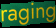
raging